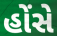
હોંસે